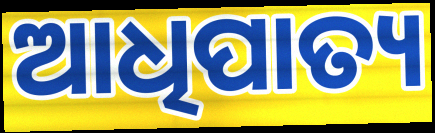
ଆଧିପାତ୍ୟ